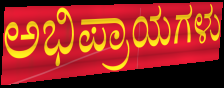
ಅಭಿಪ್ರಾಯಗಳು